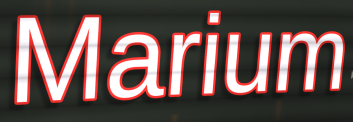
Marium